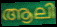
ആലി